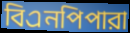
বিএনপিপারা